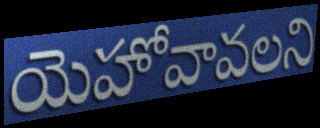
యెహోవావలని